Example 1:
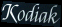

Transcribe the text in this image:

Kodiak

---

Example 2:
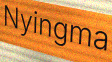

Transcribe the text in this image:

Nyingma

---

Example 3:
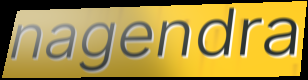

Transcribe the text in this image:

nagendra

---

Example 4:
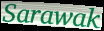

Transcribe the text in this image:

Sarawak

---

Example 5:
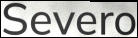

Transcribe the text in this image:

Severo